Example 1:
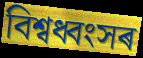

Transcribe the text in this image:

বিশ্বধ্বংসৰ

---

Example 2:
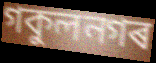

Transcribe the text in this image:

গকুলনগৰ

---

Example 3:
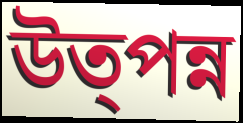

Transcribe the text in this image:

উত্পন্ন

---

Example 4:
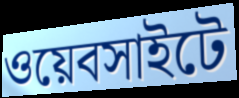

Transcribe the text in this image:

ওয়েবসাইটে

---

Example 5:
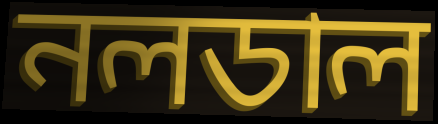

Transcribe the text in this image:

নলডাল